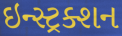
ઇન્સ્ટ્રક્શન